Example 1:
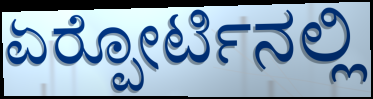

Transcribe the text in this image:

ಏರ್‍ಪೋರ್ಟಿನಲ್ಲಿ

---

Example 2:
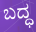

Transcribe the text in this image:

ಬದ್ಧ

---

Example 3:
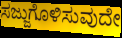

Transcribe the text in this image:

ಸಜ್ಜುಗೊಳಿಸುವುದೇ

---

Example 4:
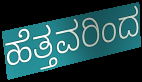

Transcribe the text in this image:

ಹೆತ್ತವರಿಂದ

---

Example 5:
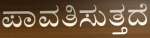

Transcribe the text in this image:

ಪಾವತಿಸುತ್ತದೆ